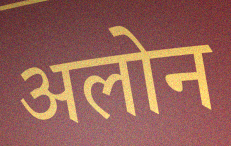
अलोन